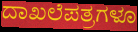
ದಾಖಲೆಪತ್ರಗಳೂ